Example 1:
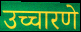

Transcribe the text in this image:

उच्चारणे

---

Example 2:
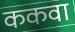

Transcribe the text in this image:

ककवा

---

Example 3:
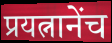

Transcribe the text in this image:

प्रयत्नानेंच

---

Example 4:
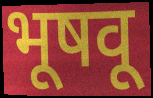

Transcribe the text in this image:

भूषवू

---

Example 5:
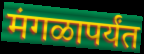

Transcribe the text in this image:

मंगळापर्यंत